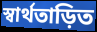
স্বার্থতাড়িত